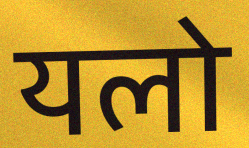
यलो